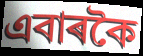
এবাৰকৈ